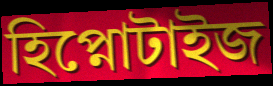
হিপ্নোটাইজ